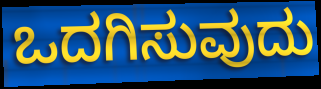
ಒದಗಿಸುವುದು